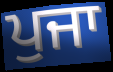
ਪੁਜਾ